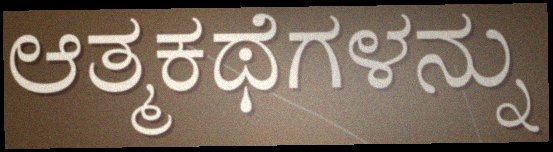
ಆತ್ಮಕಥೆಗಳನ್ನು